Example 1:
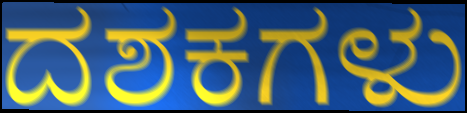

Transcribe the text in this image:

ದಶಕಗಳು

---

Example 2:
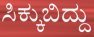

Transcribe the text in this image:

ಸಿಕ್ಕುಬಿದ್ದು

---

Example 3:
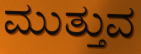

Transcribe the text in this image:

ಮುತ್ತುವ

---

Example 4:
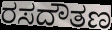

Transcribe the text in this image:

ರಸದೌತಣ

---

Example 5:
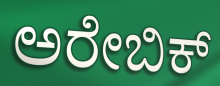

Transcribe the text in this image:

ಅರೇಬಿಕ್